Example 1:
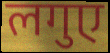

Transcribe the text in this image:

लगुए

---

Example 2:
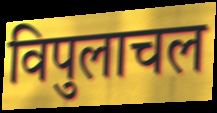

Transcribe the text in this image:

विपुलाचल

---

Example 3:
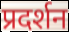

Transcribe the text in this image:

प्रदर्शन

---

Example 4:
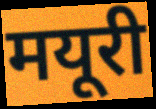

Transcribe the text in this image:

मयूरी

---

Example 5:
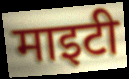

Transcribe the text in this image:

माइटी